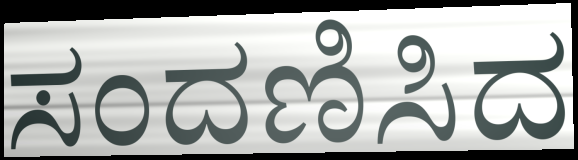
ಸಂದಣಿಸಿದ